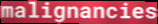
malignancies